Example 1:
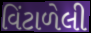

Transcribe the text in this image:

વિંટાળેલી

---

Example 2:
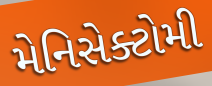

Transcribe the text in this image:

મેનિસેક્ટોમી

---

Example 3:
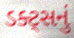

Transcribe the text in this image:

ડક્ટ્સનું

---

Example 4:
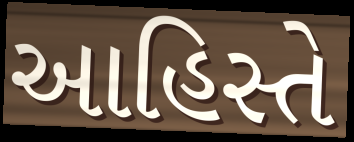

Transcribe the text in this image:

આહિસ્તે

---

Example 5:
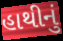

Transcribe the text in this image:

હાથીનું